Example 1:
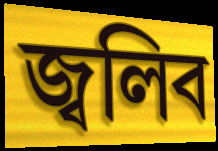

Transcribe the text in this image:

জ্বলিব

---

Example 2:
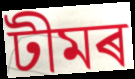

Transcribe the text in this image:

টীমৰ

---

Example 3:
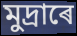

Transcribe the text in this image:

মুদ্ৰাৰে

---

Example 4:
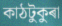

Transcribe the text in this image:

কাঠটুকুৰা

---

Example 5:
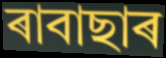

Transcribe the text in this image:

ৰাবাছাৰ